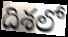
దిశలో